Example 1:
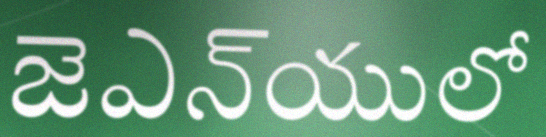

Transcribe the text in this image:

జెఎన్‌యులో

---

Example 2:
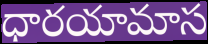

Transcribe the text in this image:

ధారయామాస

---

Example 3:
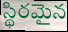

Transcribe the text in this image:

స్థిరమైన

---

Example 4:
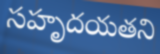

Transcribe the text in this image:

సహృదయతని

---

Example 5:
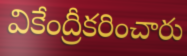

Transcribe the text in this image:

వికేంద్రీకరించారు